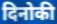
दिनोकी